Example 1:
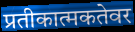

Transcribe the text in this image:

प्रतीकात्मकतेवर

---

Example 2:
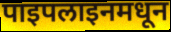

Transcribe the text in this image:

पाइपलाइनमधून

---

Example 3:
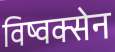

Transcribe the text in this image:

विष्वक्सेन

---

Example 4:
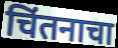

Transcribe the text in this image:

चिंतनाचा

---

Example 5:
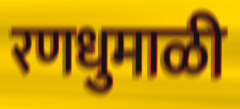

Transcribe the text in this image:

रणधुमाळी